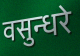
वसुन्धरे